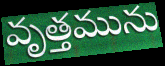
వృత్తమును